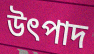
উৎপাদ